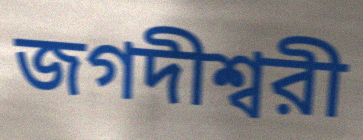
জগদীশ্বরী